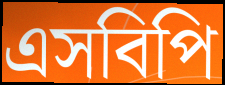
এসবিপি